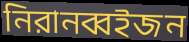
নিরানব্বইজন